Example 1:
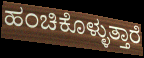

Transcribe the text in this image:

ಹಂಚಿಕೊಳ್ಳುತ್ತಾರೆ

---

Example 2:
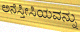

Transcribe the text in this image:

ಅನೆಸ್ತೀಸಿಯವನ್ನು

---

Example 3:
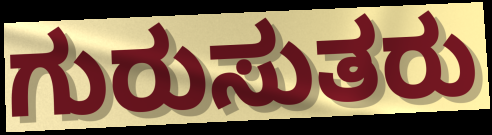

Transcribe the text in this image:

ಗುರುಸುತರು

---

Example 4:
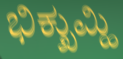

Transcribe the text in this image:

ಭಿಕ್ಖುಮ್ಹಿ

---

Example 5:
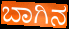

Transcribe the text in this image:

ಬಾಗಿನ